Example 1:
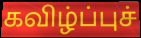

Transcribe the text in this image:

கவிழ்ப்புச்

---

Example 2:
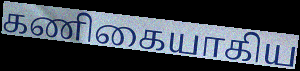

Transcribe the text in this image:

கணிகையாகிய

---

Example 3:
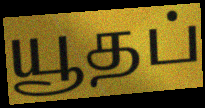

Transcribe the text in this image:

யூதப்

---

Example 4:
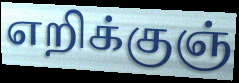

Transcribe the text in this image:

எறிக்குஞ்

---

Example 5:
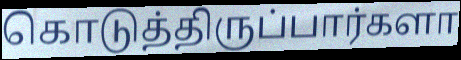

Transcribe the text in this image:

கொடுத்திருப்பார்களா